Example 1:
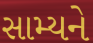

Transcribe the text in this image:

સામ્યને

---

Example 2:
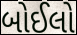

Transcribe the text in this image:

બોઈલો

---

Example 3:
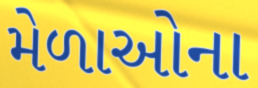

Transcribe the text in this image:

મેળાઓના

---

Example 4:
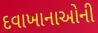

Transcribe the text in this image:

દવાખાનાઓની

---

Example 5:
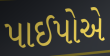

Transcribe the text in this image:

પાઈપોએ